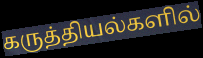
கருத்தியல்களில்